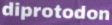
diprotodon